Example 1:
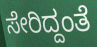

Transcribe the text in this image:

ಸೇರಿದ್ದಂತೆ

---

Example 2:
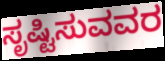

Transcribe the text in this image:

ಸೃಷ್ಟಿಸುವವರ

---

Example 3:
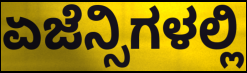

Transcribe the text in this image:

ಏಜೆನ್ಸಿಗಳಲ್ಲಿ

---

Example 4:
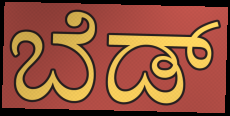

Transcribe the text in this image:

ಬೆಡ್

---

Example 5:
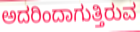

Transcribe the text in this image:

ಅದರಿಂದಾಗುತ್ತಿರುವ